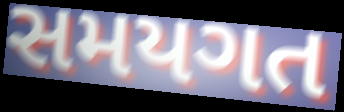
સમયગત